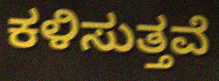
ಕಳಿಸುತ್ತವೆ